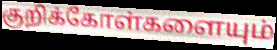
குறிக்கோள்களையும்